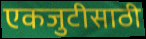
एकजुटीसाठी